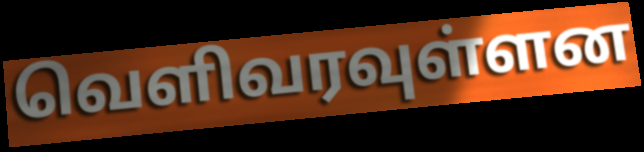
வெளிவரவுள்ளன